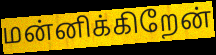
மன்னிக்கிறேன்